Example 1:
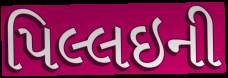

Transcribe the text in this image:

પિલ્લઇની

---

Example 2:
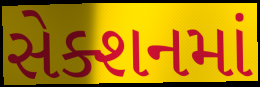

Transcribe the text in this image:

સેક્શનમાં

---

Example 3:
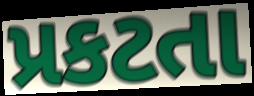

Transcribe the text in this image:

પ્રકટતા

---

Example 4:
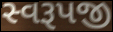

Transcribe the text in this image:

સ્વરૂપજી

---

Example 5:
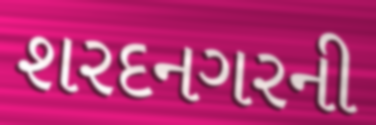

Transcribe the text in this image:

શરદનગરની